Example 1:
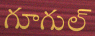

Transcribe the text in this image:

గూగుల్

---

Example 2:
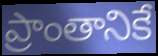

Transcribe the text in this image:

ప్రాంతానికే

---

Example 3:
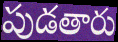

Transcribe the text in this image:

పుడతారు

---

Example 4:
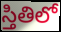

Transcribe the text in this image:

స్తితిలో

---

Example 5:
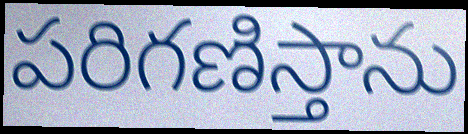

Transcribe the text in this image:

పరిగణిస్తాను